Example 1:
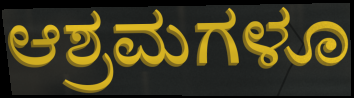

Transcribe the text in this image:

ಆಶ್ರಮಗಳೂ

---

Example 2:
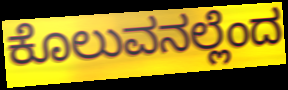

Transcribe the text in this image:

ಕೊಲುವನಲ್ಲೆಂದ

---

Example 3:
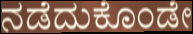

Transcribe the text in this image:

ನಡೆದುಕೊಂಡೇ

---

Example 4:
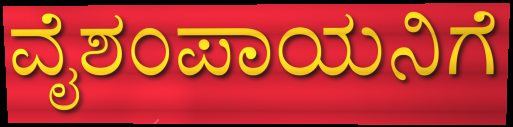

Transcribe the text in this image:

ವೈಶಂಪಾಯನಿಗೆ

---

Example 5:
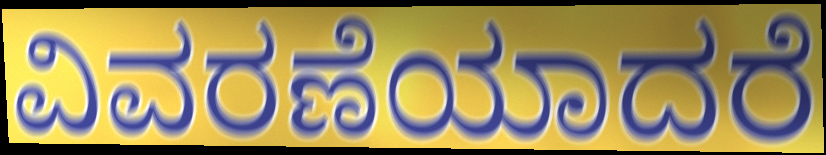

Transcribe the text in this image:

ವಿವರಣೆಯಾದರೆ